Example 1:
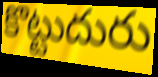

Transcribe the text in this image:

కొట్టుదురు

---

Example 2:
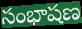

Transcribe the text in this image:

సంభాషణ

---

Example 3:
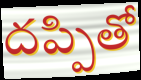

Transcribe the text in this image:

దప్పితో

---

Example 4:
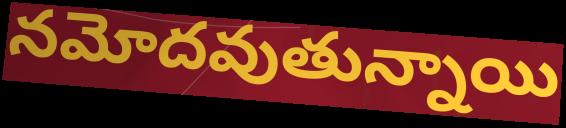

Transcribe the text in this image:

నమోదవుతున్నాయి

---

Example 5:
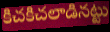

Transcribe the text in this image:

కిచకిచలాడినట్టు